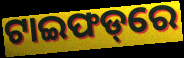
ଟାଇଫଡ୍‌ରେ